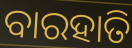
ବାରହାତି